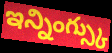
ఇన్నింగ్స్కు